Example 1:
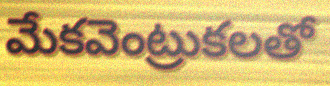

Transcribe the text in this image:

మేకవెంట్రుకలతో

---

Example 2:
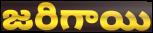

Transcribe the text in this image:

జరిగాయి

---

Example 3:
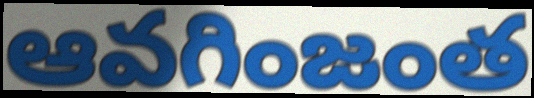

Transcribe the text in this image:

ఆవగింజంత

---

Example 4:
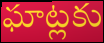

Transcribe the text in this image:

ఘాట్లకు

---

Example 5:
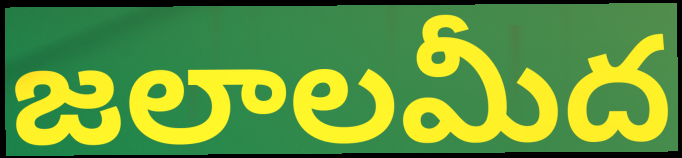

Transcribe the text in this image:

జలాలమీద